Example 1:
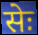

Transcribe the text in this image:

सेः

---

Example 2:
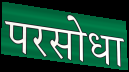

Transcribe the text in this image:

परसोधा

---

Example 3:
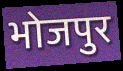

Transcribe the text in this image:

भोजपुर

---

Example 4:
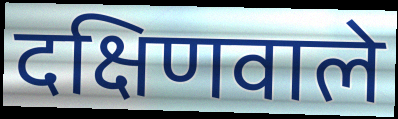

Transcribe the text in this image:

दक्षिणवाले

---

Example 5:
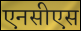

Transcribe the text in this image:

एनसीएस